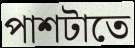
পাশটাতে